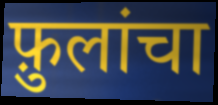
फ़ुलांचा